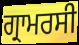
ਗ੍ਰਾਮਰਸੀ